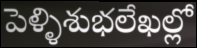
పెళ్ళిశుభలేఖల్లో